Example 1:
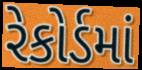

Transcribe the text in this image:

રેકોર્ડમાં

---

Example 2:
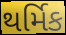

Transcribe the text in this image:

થર્મિક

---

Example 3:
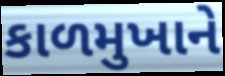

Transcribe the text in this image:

કાળમુખાને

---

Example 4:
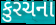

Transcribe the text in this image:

કુરચના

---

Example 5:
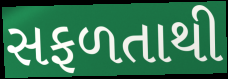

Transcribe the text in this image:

સફળતાથી